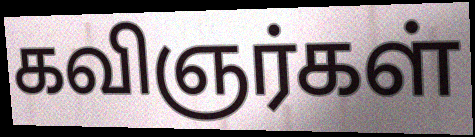
கவிஞர்கள்